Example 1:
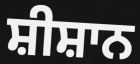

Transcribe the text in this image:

ਸ਼ੀਸ਼ਾਨ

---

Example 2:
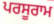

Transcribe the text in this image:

ਪਰਸੂਰਾਮ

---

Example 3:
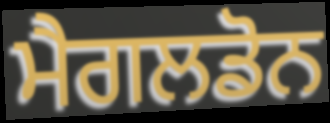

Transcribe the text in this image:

ਮੈਗਲਡੋਨ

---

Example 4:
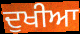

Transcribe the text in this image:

ਦੁਖੀਆ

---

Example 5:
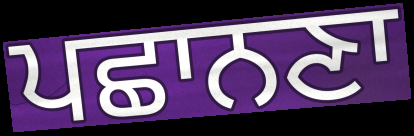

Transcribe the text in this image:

ਪਛਾਨਣਾ